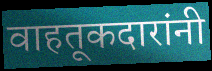
वाहतूकदारांनी